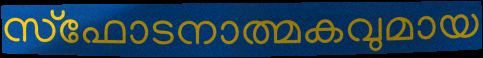
സ്ഫോടനാത്മകവുമായ